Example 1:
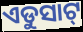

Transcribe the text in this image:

ଏଡୁସାଟ୍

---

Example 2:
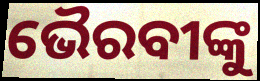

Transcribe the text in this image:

ଭୈରବୀଙ୍କୁ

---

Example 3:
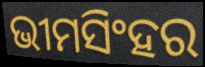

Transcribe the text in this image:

ଭୀମସିଂହର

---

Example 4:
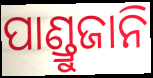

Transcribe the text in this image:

ପାଣ୍ଡ୍ରୁଜାନି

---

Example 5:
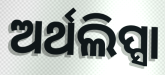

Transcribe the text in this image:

ଅର୍ଥଲିପ୍ସା